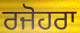
ਰਜੋਹਰਾ